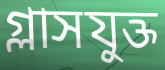
গ্লাসযুক্ত